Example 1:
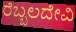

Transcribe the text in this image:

ರೆಬ್ಬಲದೇವಿ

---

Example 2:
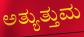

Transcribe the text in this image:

ಅತ್ಯುತ್ತುಮ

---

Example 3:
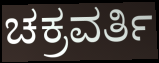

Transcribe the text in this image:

ಚಕ್ರವರ್ತಿ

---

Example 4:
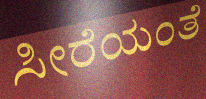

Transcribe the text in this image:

ಸೀರೆಯಂತೆ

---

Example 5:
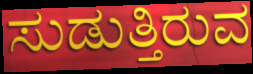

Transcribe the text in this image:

ಸುಡುತ್ತಿರುವ